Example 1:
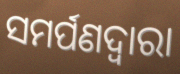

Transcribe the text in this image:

ସମର୍ପଣଦ୍ୱାରା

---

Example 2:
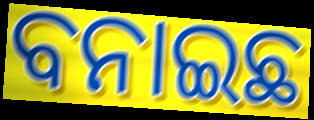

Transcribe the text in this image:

ବନାଇଛ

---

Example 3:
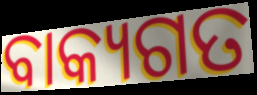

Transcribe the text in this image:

ବାକ୍ୟଗତ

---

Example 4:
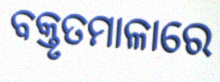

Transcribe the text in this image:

ବକ୍ତୃତମାଳାରେ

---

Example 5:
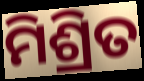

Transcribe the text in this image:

ମିଶ୍ରିତ